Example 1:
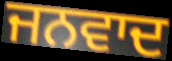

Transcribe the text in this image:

ਜਨਵਾਦ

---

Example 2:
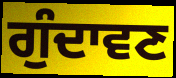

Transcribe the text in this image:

ਗੁੰਦਾਵਣ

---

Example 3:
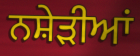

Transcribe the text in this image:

ਨਸ਼ੇੜੀਆਂ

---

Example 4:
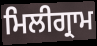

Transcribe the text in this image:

ਮਿਲੀਗ੍ਰਾਮ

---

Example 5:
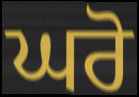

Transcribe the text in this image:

ਘਰੋ